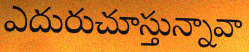
ఎదురుచూస్తున్నావా